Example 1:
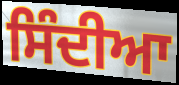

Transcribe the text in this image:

ਸਿੰਦੀਆ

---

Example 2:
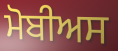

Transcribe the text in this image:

ਮੋਬੀਅਸ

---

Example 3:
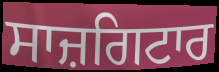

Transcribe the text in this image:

ਸਾਜ਼ਗਿਟਾਰ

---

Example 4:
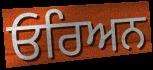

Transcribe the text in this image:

ਓਰਿਅਨ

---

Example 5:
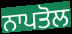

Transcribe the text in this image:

ਨਾਪਤੋਲ